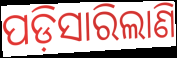
ପଡ଼ିସାରିଲାଣି